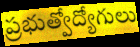
ప్రభుత్వోద్యోగులు